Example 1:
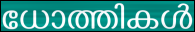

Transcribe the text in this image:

ധോത്തികൾ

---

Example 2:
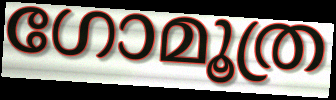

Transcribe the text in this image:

ഗോമൂത്ര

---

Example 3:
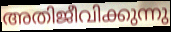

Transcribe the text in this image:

അതിജീവിക്കുന്നു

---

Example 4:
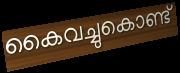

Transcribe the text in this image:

കൈവച്ചുകൊണ്ട്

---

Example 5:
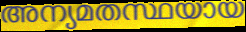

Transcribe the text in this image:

അന്യമതസ്ഥയായ